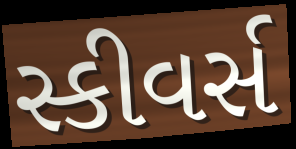
સ્કીવર્સ